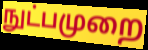
நுட்பமுறை